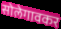
सोलेगावकर